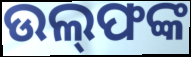
ଉଲ୍‌ଫଙ୍କ